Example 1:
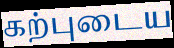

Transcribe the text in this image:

கற்புடைய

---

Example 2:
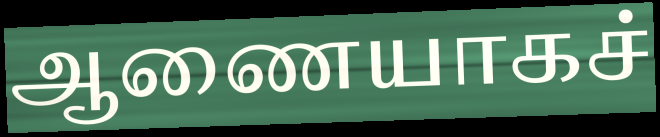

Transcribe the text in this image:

ஆணையாகச்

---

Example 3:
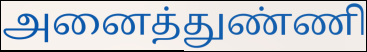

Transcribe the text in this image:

அனைத்துண்ணி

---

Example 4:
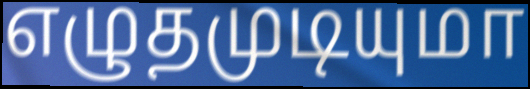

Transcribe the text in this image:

எழுதமுடியுமா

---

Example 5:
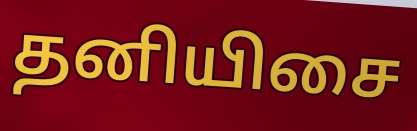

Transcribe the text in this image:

தனியிசை